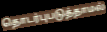
தொடர்புபடுத்தாமல்